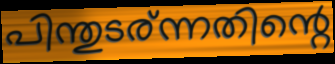
പിന്തുടര്ന്നതിന്റെ